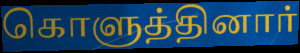
கொளுத்தினார்